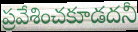
ప్రవేశించకూడదనీ